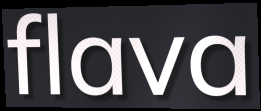
flava